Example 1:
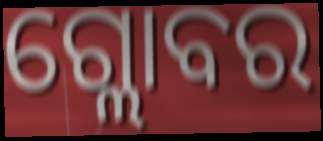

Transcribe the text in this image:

ଗ୍ଲୋବର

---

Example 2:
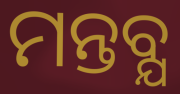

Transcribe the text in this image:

ମନ୍ତବ୍ଯ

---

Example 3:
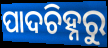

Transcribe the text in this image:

ପାଦଚିହ୍ନରୁ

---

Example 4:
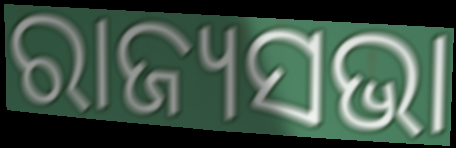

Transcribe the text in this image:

ରାଜ୍ୟସଭା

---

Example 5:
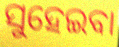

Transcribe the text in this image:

ସୁହେଇବା